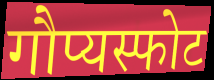
गौप्यस्फोट